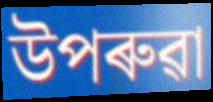
উপৰুৱা